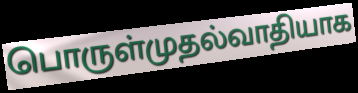
பொருள்முதல்வாதியாக